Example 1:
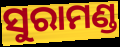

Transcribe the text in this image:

ସୁରାମଣ୍ଡ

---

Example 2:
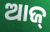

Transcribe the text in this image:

ଆଜ୍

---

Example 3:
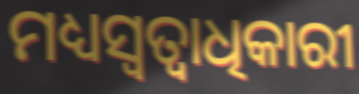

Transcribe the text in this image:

ମଧ୍ୟସ୍ୱତ୍ୱାଧିକାରୀ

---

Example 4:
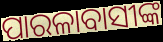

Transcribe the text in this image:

ପାରଳାବାସୀଙ୍କ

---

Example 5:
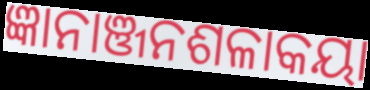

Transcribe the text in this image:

ଜ୍ଞାନାଞ୍ଜନଶଳାକୟା